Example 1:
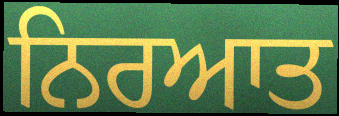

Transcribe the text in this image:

ਨਿਰਆਤ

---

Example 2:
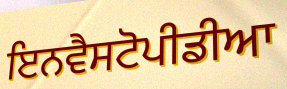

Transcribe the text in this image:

ਇਨਵੈਸਟੋਪੀਡੀਆ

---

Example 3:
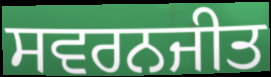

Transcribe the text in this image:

ਸਵਰਨਜੀਤ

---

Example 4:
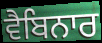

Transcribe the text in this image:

ਵੈਬਿਨਾਰ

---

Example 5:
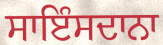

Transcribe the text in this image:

ਸਾਇੰਸਦਾਨਾ